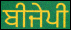
ਬੀਜੇਪੀ